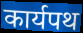
कार्यपथ